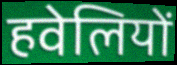
हवेलियों